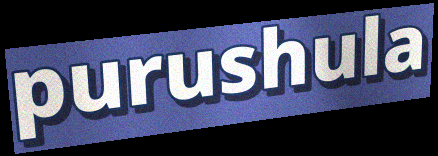
purushula